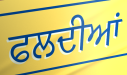
ਫਲਦੀਆਂ